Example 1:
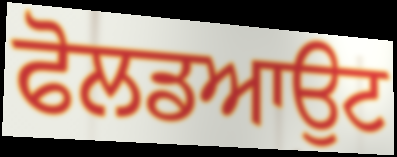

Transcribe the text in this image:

ਫੋਲਡਆਉਟ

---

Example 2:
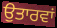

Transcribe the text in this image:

ਉਤਾਰਵਾਂ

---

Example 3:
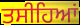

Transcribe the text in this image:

ਤਸੀਹਿਆਂ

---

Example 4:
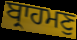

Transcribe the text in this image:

ਬ੍ਰਾਹਮਣੁ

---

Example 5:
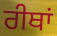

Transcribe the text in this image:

ਰੀਥਾਂ